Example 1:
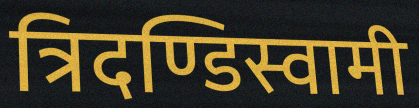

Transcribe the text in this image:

त्रिदण्डिस्वामी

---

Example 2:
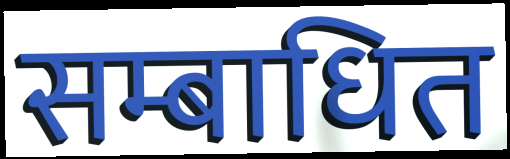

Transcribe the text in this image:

सम्बाधित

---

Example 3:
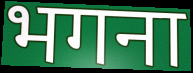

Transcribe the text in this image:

भगना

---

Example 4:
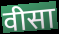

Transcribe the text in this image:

वीसा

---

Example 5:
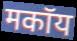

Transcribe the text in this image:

मकॉय